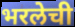
भरलेची